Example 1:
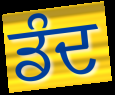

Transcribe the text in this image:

ਡੰਦ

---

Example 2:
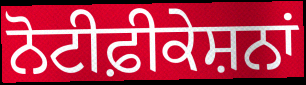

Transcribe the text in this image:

ਨੋਟੀਫ਼ੀਕੇਸ਼ਨਾਂ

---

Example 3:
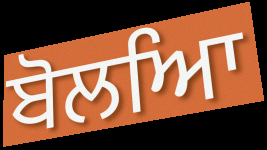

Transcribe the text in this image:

ਬੋਲਆਿ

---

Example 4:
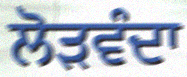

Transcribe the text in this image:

ਲੋੜਵੰਦਾ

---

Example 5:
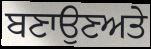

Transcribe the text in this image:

ਬਣਾਉਣਅਤੇ